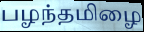
பழந்தமிழை